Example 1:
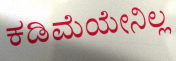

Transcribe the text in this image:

ಕಡಿಮೆಯೇನಿಲ್ಲ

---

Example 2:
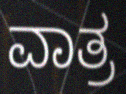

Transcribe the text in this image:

ವಾತ್ರ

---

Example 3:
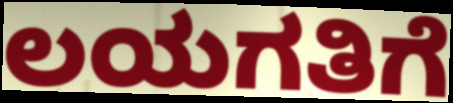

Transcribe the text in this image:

ಲಯಗತಿಗೆ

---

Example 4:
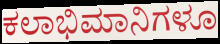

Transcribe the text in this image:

ಕಲಾಭಿಮಾನಿಗಳೂ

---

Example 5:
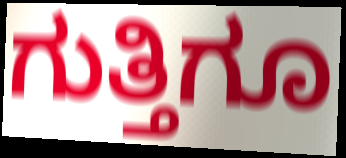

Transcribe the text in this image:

ಗುತ್ತಿಗೂ